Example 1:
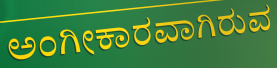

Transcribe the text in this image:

ಅಂಗೀಕಾರವಾಗಿರುವ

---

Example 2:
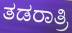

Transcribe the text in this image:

ತಡರಾತ್ರಿ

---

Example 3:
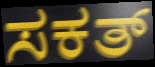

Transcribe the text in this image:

ಸಕತ್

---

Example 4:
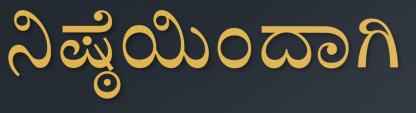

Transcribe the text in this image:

ನಿಷ್ಠೆಯಿಂದಾಗಿ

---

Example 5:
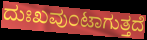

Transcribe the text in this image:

ದುಃಖವುಂಟಾಗುತ್ತದೆ